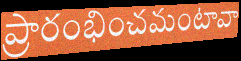
ప్రారంభించమంటావా